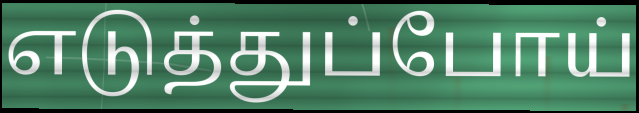
எடுத்துப்போய்